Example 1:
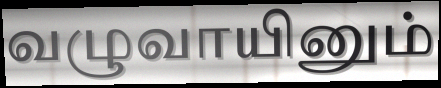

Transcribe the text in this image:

வழுவாயினும்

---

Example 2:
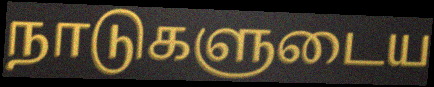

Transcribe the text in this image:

நாடுகளுடைய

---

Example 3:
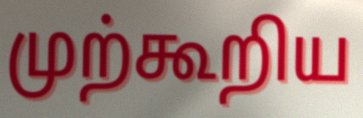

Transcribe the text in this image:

முற்கூறிய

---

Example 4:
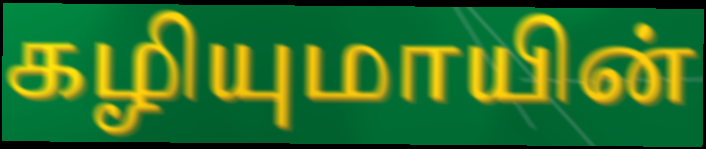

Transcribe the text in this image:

கழியுமாயின்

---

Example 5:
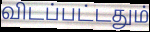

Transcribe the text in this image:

விடப்பட்டதும்